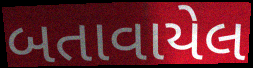
બતાવાયેલ